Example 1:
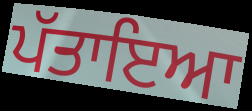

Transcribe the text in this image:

ਪੱਤਾਇਆ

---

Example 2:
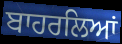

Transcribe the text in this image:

ਬਾਹਰਲਿਆਂ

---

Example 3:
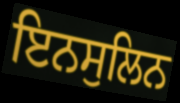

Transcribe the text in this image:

ਇਨਸੁਲਿਨ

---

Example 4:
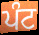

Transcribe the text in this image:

ਪੰਟ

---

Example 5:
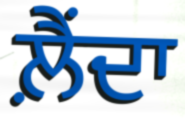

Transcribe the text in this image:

ਲ਼ੈਂਦਾ